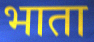
भाता